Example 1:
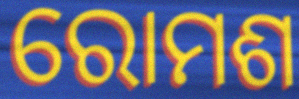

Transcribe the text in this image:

ରୋମଶ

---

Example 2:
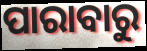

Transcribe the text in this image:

ପାରାବାରୁ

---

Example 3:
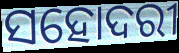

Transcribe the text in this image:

ସହୋଦରୀ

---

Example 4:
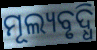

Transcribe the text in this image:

ମୂଲ୍ୟବୃଦ୍ଧି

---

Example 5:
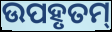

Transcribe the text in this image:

ଉପହୃତମ୍